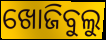
ଖୋଜିବୁଲୁ